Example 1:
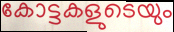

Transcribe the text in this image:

കോട്ടകളുടെയും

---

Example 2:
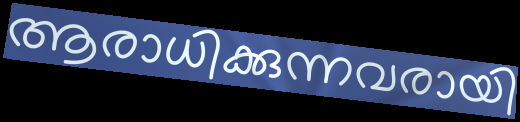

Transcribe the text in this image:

ആരാധിക്കുന്നവരായി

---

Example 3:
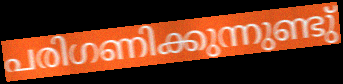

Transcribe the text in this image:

പരിഗണിക്കുന്നുണ്ടു്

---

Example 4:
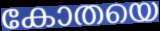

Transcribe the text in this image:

കോതയെ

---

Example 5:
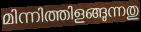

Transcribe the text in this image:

മിന്നിത്തിളങ്ങുന്നതു